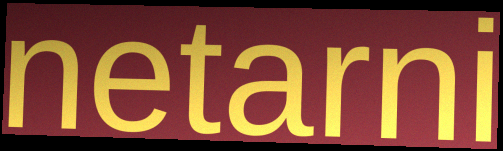
netarni